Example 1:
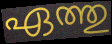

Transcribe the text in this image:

ഏത്തു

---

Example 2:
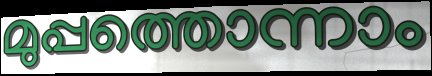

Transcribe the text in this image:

മുപ്പത്തൊന്നാം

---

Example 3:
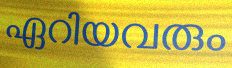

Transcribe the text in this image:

ഏറിയവരും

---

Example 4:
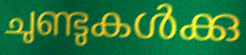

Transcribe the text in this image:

ചുണ്ടുകൾക്കു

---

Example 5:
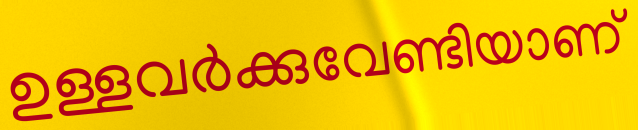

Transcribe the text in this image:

ഉള്ളവർക്കുവേണ്ടിയാണ്